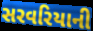
સરવરિયાની